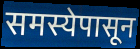
समस्येपासून